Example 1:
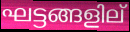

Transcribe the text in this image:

ഘട്ടങ്ങളില്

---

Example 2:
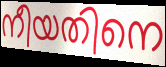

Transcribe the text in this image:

നീയതിനെ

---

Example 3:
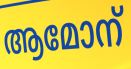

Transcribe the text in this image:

ആമോന്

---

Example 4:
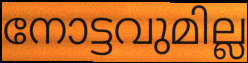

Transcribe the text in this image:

നോട്ടവുമില്ല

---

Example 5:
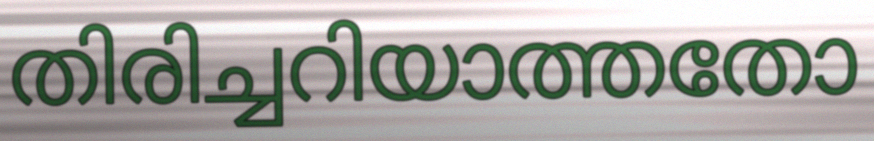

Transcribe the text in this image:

തിരിച്ചറിയാത്തതോ